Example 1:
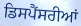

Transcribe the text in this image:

ਡਿਸਪੈਂਸਰੀਆਂ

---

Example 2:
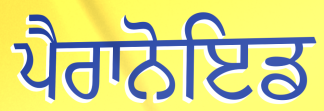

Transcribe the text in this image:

ਪੈਰਾਨੋਇਡ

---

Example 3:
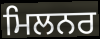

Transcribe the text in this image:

ਮਿਲਨਰ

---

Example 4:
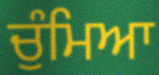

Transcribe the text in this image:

ਚੁੰਮਿਆ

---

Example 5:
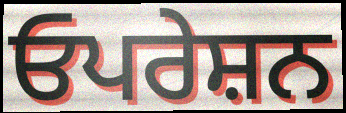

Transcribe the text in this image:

ਓਪਰੇਸ਼ਨ